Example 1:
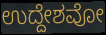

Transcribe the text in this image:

ಉದ್ದೇಶವೋ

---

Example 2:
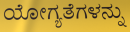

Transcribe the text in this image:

ಯೋಗ್ಯತೆಗಳನ್ನು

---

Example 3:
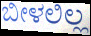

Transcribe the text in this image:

ಬೀಳಲಿಲ್ಲ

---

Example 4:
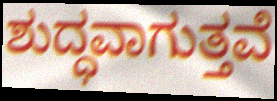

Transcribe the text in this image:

ಶುದ್ಧವಾಗುತ್ತವೆ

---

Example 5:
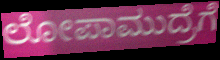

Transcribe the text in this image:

ಲೋಪಾಮುದ್ರೆಗೆ